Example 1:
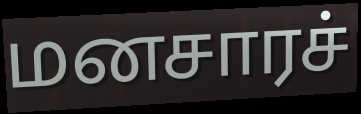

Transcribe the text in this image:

மனசாரச்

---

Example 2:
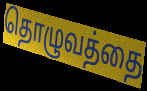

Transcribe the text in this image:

தொழுவத்தை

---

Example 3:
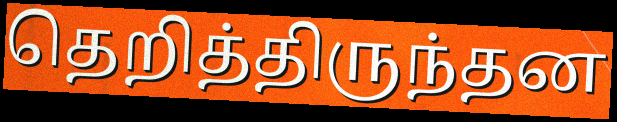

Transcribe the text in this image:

தெறித்திருந்தன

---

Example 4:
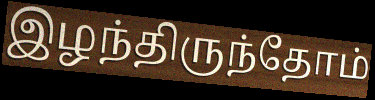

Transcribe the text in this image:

இழந்திருந்தோம்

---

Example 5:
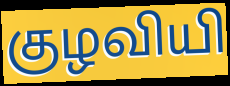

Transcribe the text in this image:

குழவியி